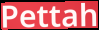
Pettah